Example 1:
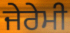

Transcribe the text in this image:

ਜੇਰੇਮੀ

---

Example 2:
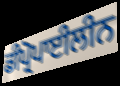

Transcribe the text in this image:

ਡੀਪ੍ਰੋਪਾਈਲੀਨ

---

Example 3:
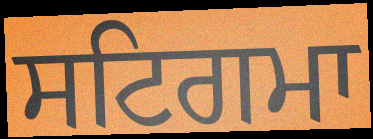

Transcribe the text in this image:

ਸਟਿਗਮਾ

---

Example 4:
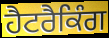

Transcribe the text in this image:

ਹੈਟਰੈਕਿੰਗ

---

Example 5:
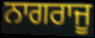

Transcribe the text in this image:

ਨਾਗਰਾਜੂ